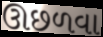
ઊછળવા